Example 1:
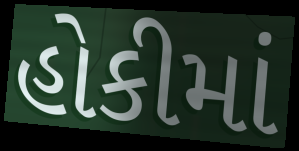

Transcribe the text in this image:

હોકીમાં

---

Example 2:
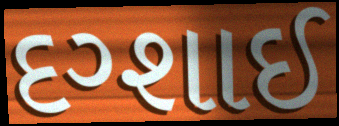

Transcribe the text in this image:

દગ્શાઈ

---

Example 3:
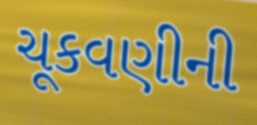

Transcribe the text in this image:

ચૂકવણીની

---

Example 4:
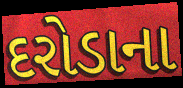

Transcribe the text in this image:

દરોડાના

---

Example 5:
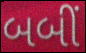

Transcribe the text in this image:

બબીં